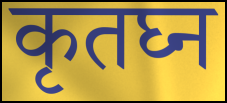
कृतघ्न